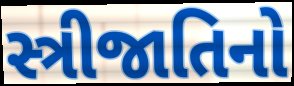
સ્ત્રીજાતિનો